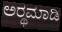
ಅರ್‍ಥಮಾಡಿ